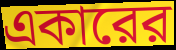
একারের